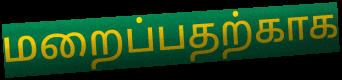
மறைப்பதற்காக